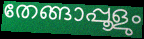
തേങ്ങാപ്പൂളും